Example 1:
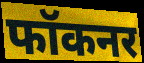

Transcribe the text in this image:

फॉकनर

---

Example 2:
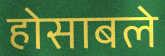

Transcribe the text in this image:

होसाबले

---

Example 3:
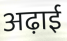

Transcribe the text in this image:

अढ़ाई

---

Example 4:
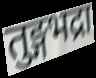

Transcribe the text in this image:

तुङ्गभद्रा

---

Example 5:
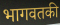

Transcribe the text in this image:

भागवतकी